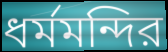
ধর্মমন্দির